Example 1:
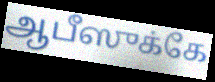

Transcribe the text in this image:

ஆபீஸுக்கே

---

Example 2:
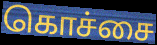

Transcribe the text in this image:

கொச்சை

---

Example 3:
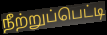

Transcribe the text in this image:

நீற்றுப்பெட்டி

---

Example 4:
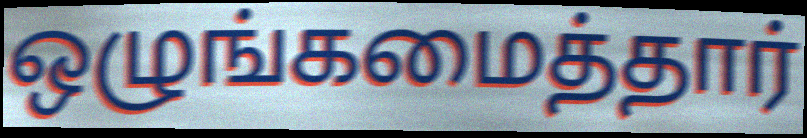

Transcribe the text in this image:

ஒழுங்கமைத்தார்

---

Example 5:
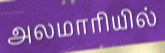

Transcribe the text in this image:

அலமாரியில்